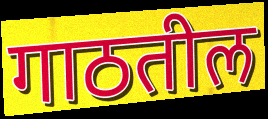
गाठतील